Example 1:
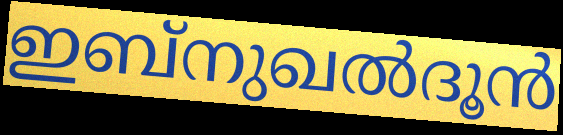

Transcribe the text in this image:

ഇബ്നുഖൽദൂൻ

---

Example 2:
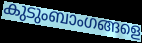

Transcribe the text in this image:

കുടുംബാംഗങ്ങളെ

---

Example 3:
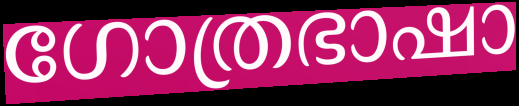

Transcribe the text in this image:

ഗോത്രഭാഷാ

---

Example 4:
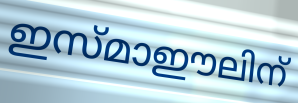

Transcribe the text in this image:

ഇസ്മാഈലിന്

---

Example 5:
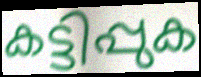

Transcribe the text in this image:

കട്ടിപ്പുക